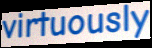
virtuously